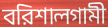
বরিশালগামী